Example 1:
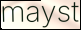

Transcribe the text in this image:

mayst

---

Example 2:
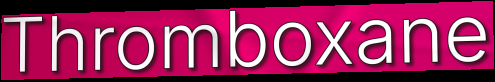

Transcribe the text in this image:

Thromboxane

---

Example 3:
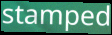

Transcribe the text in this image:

stamped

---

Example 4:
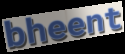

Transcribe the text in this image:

bheent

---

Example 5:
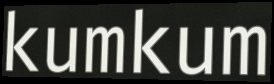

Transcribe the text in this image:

kumkum